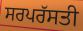
ਸਰਪਰੱਸਤੀ